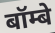
बॉम्बे